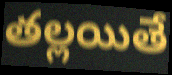
తల్లయితే